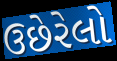
ઉછેરેલો